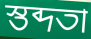
স্তব্দতা